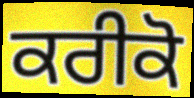
ਕਰੀਕੋ